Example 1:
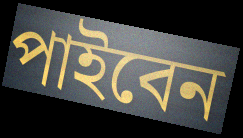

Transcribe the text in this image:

পাইবেন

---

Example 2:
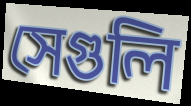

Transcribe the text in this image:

সেগুলি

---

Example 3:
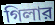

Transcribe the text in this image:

গিলার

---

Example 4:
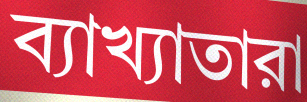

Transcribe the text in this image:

ব্যাখ্যাতারা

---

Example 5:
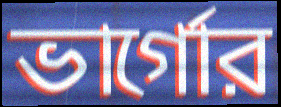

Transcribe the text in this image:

ভার্গোর